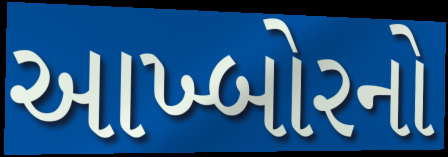
આખ્બોરનો